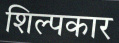
शिल्पकार